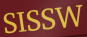
SISSW